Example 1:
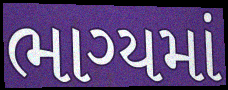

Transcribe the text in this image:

ભાગ્યમાં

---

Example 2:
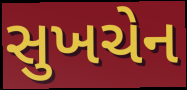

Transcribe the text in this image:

સુખચેન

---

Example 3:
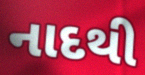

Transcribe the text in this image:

નાદથી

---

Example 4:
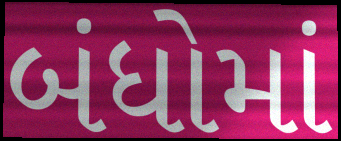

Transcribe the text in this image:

બંધોમાં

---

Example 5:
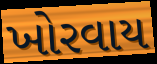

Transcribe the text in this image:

ખોરવાય